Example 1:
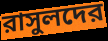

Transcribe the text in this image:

রাসুলদের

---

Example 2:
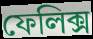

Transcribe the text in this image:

ফেলিক্স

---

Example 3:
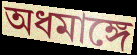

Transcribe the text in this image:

অধমাঙ্গে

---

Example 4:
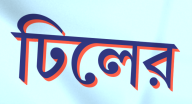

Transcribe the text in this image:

ঢিলের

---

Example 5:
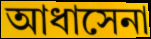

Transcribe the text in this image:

আধাসেনা